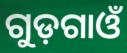
ଗୁଡ଼ଗାଓଁ